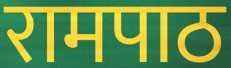
रामपाठ